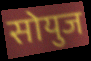
सोयुज